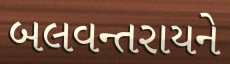
બલવન્તરાયને